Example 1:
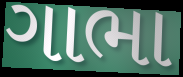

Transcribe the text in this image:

ગાભા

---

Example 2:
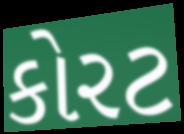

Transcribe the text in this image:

કોરટ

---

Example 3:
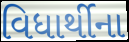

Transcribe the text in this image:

વિધાર્થીના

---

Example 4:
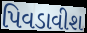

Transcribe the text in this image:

પિવડાવીશ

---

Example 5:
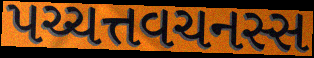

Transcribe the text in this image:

પચ્ચત્તવચનસ્સ